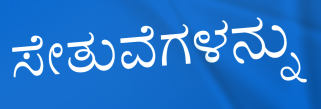
ಸೇತುವೆಗಳನ್ನು